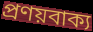
প্রণয়বাক্য